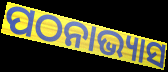
ପଠନାଭ୍ୟାସ